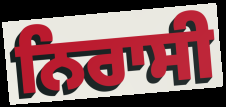
ਨਿਰਾਸੀ